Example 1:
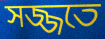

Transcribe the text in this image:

সজ্জতে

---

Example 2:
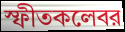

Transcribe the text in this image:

স্ফীতকলেবর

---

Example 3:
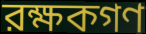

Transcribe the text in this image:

রক্ষকগণ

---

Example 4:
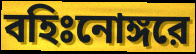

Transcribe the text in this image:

বহিঃনোঙ্গরে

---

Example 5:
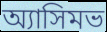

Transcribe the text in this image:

অ্যাসিমভ